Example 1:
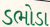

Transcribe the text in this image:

ડભોડા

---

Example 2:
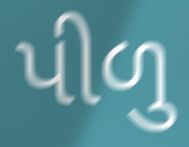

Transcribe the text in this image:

પીળુ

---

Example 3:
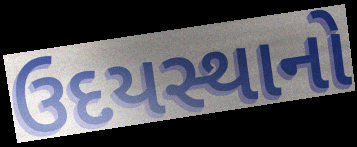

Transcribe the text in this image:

ઉદયસ્થાનો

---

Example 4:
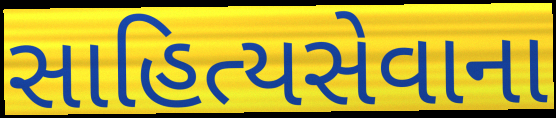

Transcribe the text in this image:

સાહિત્યસેવાના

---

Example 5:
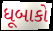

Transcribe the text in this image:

ધૂબાકો